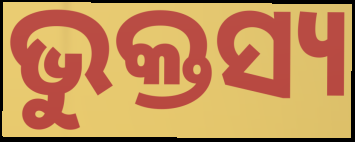
ଭୁକ୍ତସ୍ୟ